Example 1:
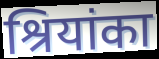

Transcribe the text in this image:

श्रियांका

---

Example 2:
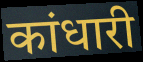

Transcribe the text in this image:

कांधारी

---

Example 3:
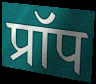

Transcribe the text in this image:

प्रॉप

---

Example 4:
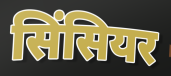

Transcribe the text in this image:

सिंसियर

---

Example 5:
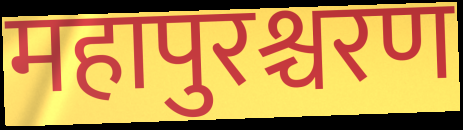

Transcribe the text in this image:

महापुरश्चरण